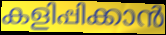
കളിപ്പിക്കാൻ